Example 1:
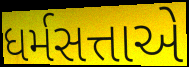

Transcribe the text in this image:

ધર્મસત્તાએ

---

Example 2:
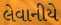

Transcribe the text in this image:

લેવાનીયે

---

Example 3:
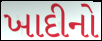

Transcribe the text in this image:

ખાદીનો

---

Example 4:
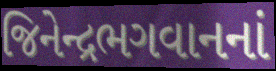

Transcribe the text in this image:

જિનેન્દ્રભગવાનનાં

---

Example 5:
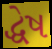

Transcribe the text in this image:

દ્ધેષ